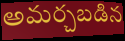
అమర్చబడిన